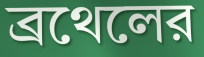
ব্রথেলের